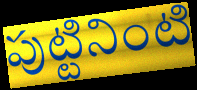
పుట్టినింటి